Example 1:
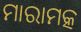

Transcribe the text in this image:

ମାରାମତ୍କ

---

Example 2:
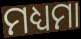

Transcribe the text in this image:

ମଧ୍ୟମା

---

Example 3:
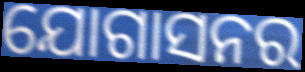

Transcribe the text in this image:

ଯୋଗାସନର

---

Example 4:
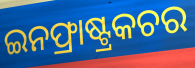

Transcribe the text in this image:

ଇନଫ୍ରାଷ୍ଟ୍ରକଚର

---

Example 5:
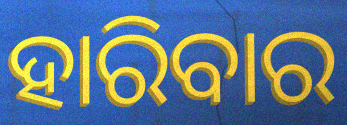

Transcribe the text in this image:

ହାରିବାର